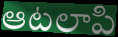
ఆటలాపి